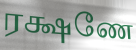
ரக்ஷணே